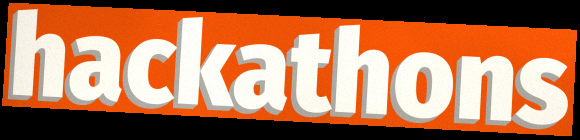
hackathons